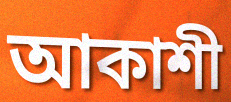
আকাশী